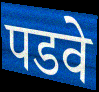
पडवे